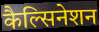
कैल्सिनेशन